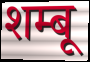
शम्बू